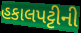
હકાલપટ્ટીની